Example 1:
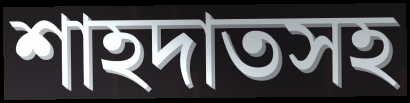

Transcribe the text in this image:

শাহদাতসহ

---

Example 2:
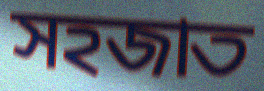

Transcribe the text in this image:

সহজাত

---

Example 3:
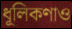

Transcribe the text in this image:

ধূলিকণাও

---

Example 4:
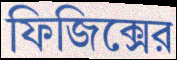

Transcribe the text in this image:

ফিজিক্সের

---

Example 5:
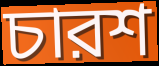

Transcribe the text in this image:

চারশ